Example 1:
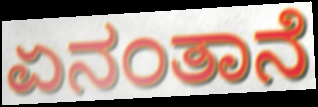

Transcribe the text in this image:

ಏನಂತಾನೆ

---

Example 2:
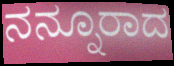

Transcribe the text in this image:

ನನ್ನೂರಾದ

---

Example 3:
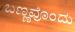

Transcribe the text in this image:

ಬಣ್ಣವೊಂದು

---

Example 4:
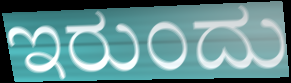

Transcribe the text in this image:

ಇರುಂದು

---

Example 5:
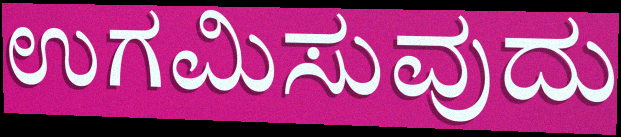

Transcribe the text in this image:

ಉಗಮಿಸುವುದು